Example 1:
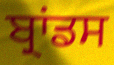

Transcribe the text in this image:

ਬ੍ਰਾਂਡਸ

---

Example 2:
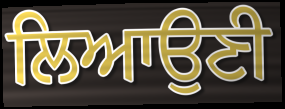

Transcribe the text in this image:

ਲਿਆਉਣੀ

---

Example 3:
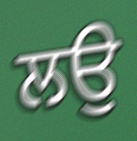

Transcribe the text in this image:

ਲਉ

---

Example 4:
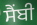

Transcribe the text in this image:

ਸੈਂਬੀ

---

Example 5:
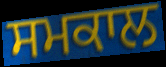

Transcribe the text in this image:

ਸਮਕਾਲ